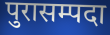
पुरासम्पदा